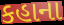
કહાના